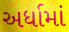
અર્ધામાં